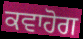
ਕਵਾਹੋਗ